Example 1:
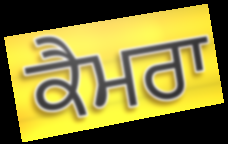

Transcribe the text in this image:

ਕੈਮਰਾ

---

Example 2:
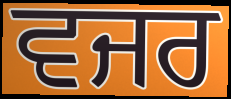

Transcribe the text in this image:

ਵਜਰ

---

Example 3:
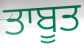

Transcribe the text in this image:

ਤਾਬੂਤ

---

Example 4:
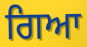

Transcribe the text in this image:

ਗਿਆ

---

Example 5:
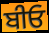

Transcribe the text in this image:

ਬੀਓ